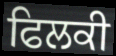
ਫਿਲਕੀ